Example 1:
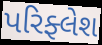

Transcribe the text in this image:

પરિફ્લેશ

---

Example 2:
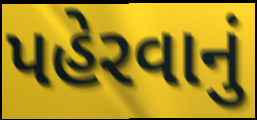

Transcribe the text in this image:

પહેરવાનું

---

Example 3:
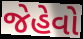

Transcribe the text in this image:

જેહેવો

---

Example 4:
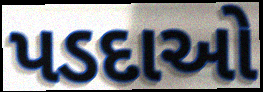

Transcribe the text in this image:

પડદાઓ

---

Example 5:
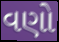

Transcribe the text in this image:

વણો